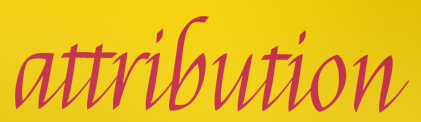
attribution